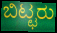
ಬಿಟ್ಟರು